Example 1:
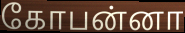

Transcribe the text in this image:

கோபன்னா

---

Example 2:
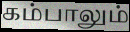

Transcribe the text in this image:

கம்பாலும்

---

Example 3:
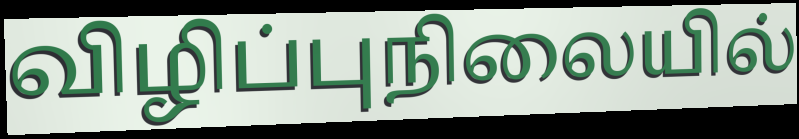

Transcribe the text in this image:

விழிப்புநிலையில்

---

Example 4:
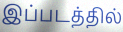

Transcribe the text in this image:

இப்படத்தில்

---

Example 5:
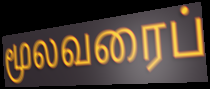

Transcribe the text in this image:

மூலவரைப்